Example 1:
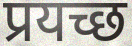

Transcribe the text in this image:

प्रयच्छ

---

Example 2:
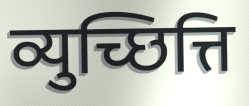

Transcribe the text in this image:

व्युच्छित्ति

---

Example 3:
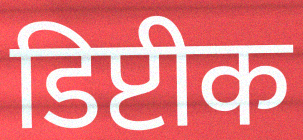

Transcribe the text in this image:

डिप्टीक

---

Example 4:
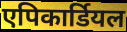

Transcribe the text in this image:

एपिकार्डियल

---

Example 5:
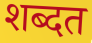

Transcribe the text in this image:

शब्दत